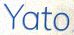
Yato